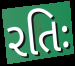
રતિઃ